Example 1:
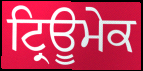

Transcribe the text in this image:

ਟ੍ਰਿਊਮੇਕ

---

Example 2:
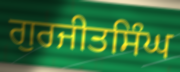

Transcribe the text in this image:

ਗੁਰਜੀਤਸਿੰਘ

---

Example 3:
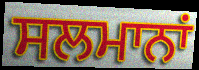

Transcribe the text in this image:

ਸਲਮਾਨਾਂ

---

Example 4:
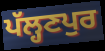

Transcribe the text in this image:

ਪੱਲ੍ਹਣਪੁਰ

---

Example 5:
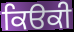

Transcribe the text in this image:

ਕਿੳਕੀ